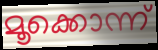
മൂക്കൊന്ന്